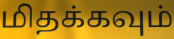
மிதக்கவும்